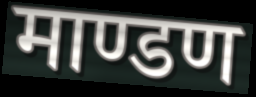
माण्डण